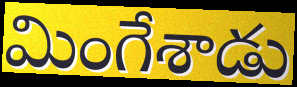
మింగేశాడు